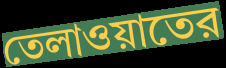
তেলাওয়াতের